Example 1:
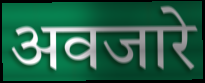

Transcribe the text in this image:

अवजारे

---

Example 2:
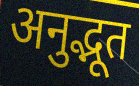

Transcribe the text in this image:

अनुद्भूत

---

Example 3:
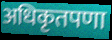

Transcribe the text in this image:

अधिकृतपणा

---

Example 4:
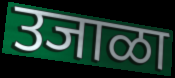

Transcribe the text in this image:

उजाळा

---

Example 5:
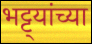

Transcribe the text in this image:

भट्ट्यांच्या